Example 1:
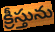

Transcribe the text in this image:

క్రీస్తును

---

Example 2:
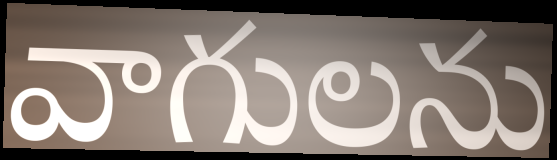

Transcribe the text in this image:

వాగులను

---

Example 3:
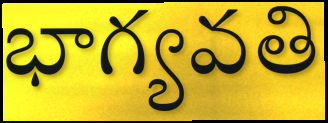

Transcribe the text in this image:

భాగ్యవతి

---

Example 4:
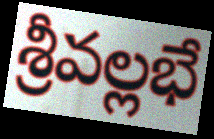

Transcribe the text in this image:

శ్రీవల్లభే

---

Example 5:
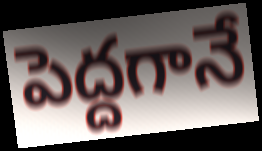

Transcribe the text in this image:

పెద్దగానే